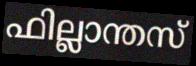
ഫില്ലാന്തസ്